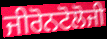
ਜੀਰੋਨਟੋਲੋਜੀ